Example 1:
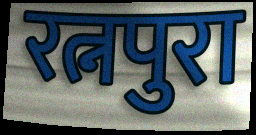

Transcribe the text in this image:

रत्नपुरा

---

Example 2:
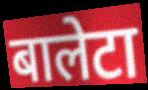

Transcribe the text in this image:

बालेटा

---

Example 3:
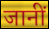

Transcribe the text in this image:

जानीं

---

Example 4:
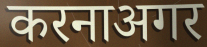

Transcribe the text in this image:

करनाअगर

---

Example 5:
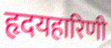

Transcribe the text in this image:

हृदयहारिणी